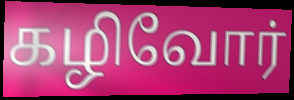
கழிவோர்